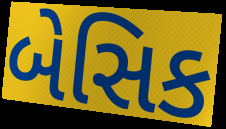
બેસિક